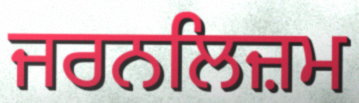
ਜਰਨਲਿਜ਼ਮ